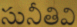
సునీతివి